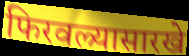
फिरवल्यासारखे